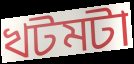
খটমটা